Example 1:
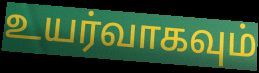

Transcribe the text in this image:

உயர்வாகவும்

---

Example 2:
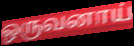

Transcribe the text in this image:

ஒருவனாய்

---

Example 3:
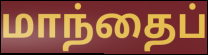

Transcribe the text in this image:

மாந்தைப்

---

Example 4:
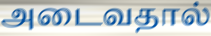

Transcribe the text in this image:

அடைவதால்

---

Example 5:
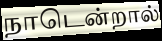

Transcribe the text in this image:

நாடென்றால்